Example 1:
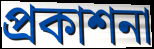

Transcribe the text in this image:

প্রকাশনা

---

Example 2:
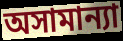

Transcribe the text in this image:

অসামান্যা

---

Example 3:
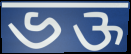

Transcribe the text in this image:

ভক্ত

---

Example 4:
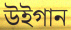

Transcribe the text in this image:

উইগান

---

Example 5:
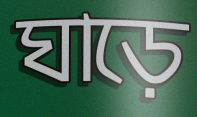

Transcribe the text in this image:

ঘাড়ে